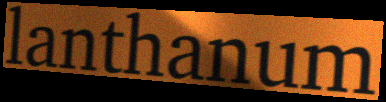
lanthanum